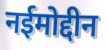
नईमोद्दीन